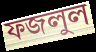
ফজলুল